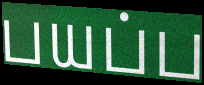
பயப்ப